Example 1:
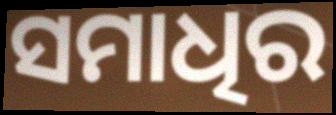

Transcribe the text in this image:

ସମାଧିର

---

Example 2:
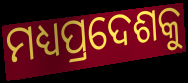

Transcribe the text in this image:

ମଧ୍ୟପ୍ରଦେଶକୁ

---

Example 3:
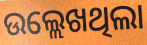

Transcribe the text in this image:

ଉଲ୍ଲେଖଥିଲା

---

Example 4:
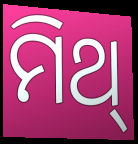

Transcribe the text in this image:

ମିଥ୍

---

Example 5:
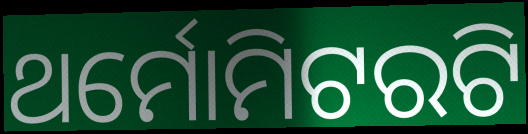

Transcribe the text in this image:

ଥର୍ମୋମିଟରଟି